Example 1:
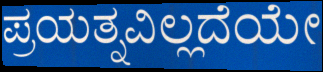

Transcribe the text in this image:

ಪ್ರಯತ್ನವಿಲ್ಲದೆಯೇ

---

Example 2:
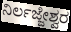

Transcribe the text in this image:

ನಿರ್ಲಜ್ಜೇಶ್ವರ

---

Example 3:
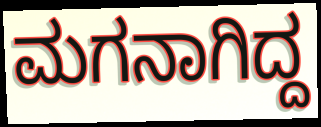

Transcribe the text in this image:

ಮಗನಾಗಿದ್ದ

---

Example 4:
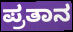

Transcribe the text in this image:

ಪ್ರತಾನ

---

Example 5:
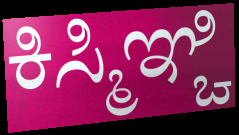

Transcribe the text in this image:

ಕಿಸ್ಮಿಞ್ಚಿ